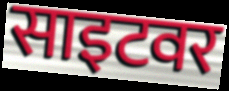
साइटवर